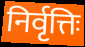
निर्वृत्तिः